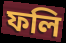
ফলি